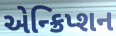
એન્ક્રિપ્શન